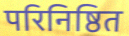
परिनिष्ठित